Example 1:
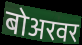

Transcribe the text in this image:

बोअरवर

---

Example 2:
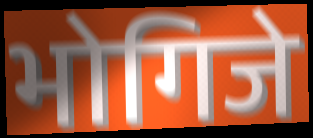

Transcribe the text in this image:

भोगिजे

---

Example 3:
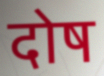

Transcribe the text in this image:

दोष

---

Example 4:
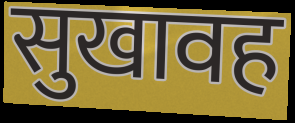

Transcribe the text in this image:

सुखावह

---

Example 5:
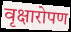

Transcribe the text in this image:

वृक्षारोपण